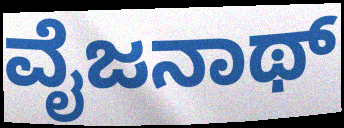
ವೈಜನಾಥ್